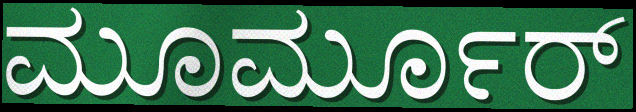
ಮೂರ್ಮೂರ್